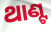
ଥାଣ୍ଟ